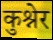
कुश्नेर